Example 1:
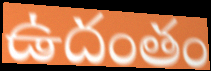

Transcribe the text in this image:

ఉదంతం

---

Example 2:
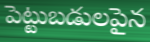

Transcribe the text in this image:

పెట్టుబడులపైన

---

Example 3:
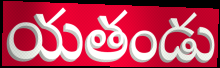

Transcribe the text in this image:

యతండు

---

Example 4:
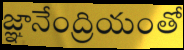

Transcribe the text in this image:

జ్ఞానేంద్రియంతో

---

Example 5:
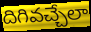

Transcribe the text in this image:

దిగివచ్చేలా